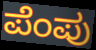
ಪೆಂಪು